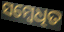
ସମ୍ବେଧିତ